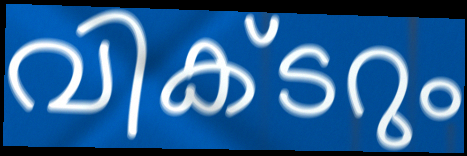
വിക്ടറും